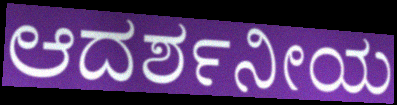
ಆದರ್ಶನೀಯ